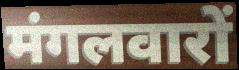
मंगलवारों